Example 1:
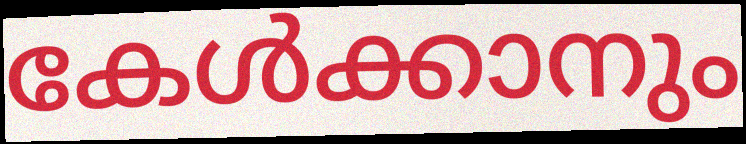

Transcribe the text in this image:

കേൾക്കാനും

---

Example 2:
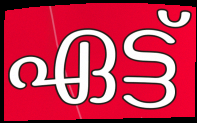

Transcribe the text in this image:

ഏട്ട്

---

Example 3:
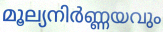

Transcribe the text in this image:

മൂല്യനിർണ്ണയവും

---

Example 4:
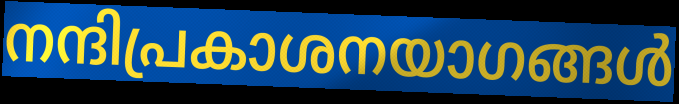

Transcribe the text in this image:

നന്ദിപ്രകാശനയാഗങ്ങൾ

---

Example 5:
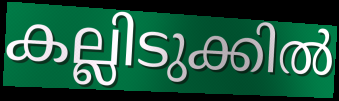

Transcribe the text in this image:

കല്ലിടുക്കിൽ